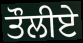
ਤੌਲੀਏ